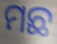
ମଛ